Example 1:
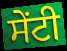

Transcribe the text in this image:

ਸੇਂਟੀ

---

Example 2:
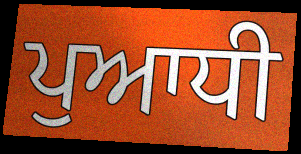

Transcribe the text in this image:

ਪੁਆਧੀ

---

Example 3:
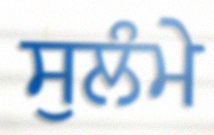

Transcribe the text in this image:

ਸੁਲੰਮੇ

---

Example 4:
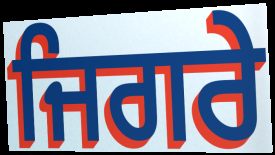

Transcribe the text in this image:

ਜਿਗਰੇ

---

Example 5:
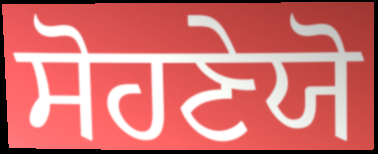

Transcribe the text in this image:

ਸੋਹਣੇਯੋ